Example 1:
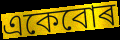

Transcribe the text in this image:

একেবোৰ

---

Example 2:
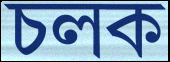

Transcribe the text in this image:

চলক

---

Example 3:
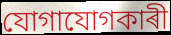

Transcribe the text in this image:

যোগাযোগকাৰী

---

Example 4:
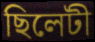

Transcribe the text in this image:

ছিলেটী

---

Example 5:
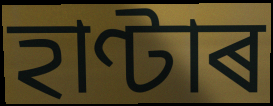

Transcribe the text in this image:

হাণ্টাৰ